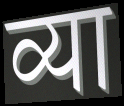
व्या